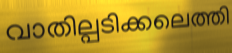
വാതില്പടിക്കലെത്തി